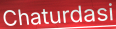
Chaturdasi